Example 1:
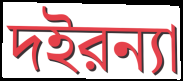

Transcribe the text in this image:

দইরন্যা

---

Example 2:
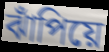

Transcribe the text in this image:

ঝাঁপিয়ে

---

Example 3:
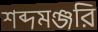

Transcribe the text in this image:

শব্দমঞ্জরি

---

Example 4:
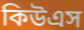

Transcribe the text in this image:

কিউএস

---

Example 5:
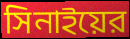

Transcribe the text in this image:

সিনাইয়ের